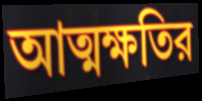
আত্মক্ষতির